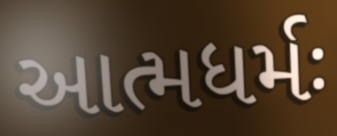
આત્મધર્મઃ